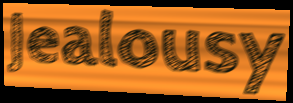
Jealousy